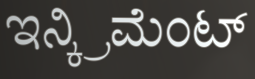
ಇನ್ಕ್ರಿಮೆಂಟ್